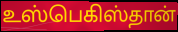
உஸ்பெகிஸ்தான்